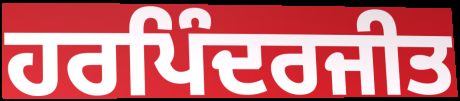
ਹਰਪਿੰਦਰਜੀਤ